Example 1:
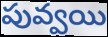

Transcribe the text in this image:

పువ్వయి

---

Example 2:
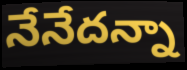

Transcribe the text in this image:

నేనేదన్నా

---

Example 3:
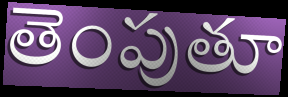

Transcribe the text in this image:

తెంపుతూ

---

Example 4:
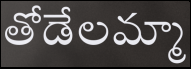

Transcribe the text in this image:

తోడేలమ్మా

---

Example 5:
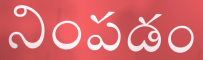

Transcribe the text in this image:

నింపడం